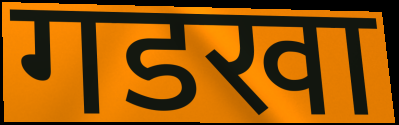
गडखा